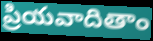
ప్రియవాదితాం